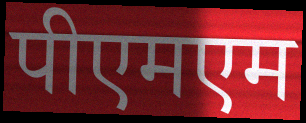
पीएमएम